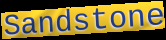
Sandstone